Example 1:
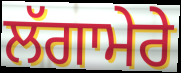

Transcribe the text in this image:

ਲੱਗਾਮੇਰੇ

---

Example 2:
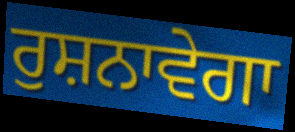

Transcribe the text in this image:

ਰੁਸ਼ਨਾਵੇਗਾ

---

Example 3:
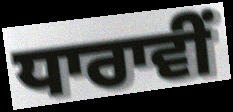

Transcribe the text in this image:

ਧਾਰਾਵੀਂ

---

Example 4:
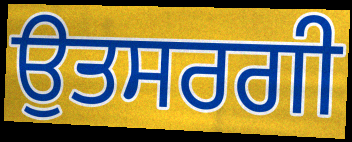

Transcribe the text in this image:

ਉਤਸਰਗੀ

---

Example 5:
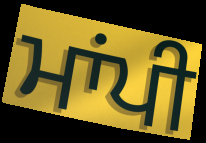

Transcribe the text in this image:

ਮਾਂਪੀ